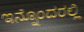
ಇನ್ನೊಂದರಲ್ಲಿ